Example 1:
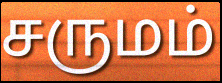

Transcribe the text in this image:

சருமம்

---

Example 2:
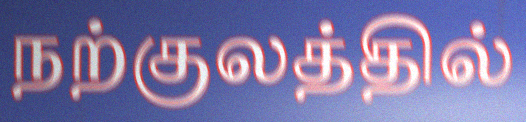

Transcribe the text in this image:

நற்குலத்தில்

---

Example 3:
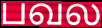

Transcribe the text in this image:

பவல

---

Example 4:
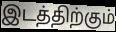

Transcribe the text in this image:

இடத்திற்கும்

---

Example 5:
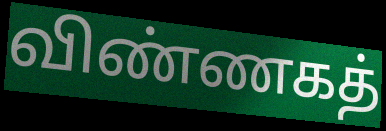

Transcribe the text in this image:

விண்ணகத்